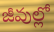
జీవుల్లో